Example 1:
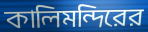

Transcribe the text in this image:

কালিমন্দিরের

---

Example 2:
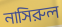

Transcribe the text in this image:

নাসিরুল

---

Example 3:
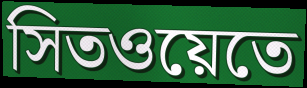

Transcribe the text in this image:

সিতওয়েতে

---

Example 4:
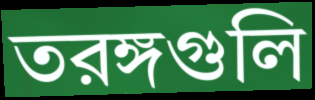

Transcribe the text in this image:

তরঙ্গগুলি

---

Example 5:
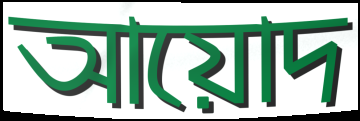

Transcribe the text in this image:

আয়োদ